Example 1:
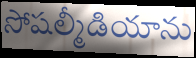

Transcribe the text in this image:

సోషల్మీడియాను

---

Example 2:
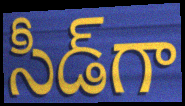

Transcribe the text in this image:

సీడ్‌గా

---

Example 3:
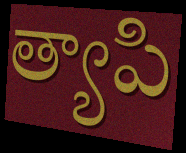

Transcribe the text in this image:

త్యాపి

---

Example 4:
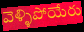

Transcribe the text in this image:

వెళ్ళిపోయేరు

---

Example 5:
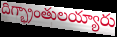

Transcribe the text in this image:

దిగ్భ్రాంతులయ్యారు